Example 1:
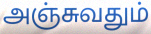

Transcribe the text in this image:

அஞ்சுவதும்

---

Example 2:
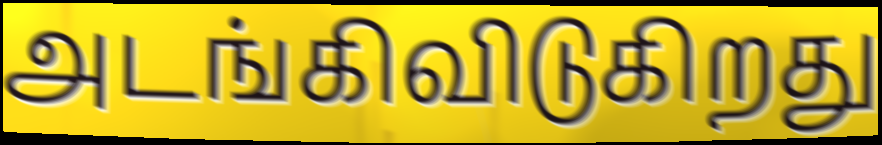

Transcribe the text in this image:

அடங்கிவிடுகிறது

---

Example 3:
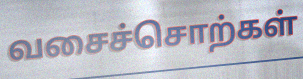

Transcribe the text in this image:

வசைச்சொற்கள்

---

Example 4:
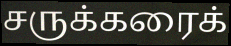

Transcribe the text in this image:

சருக்கரைக்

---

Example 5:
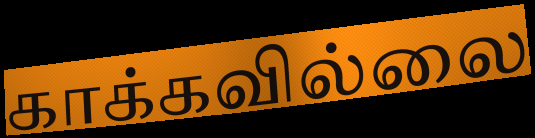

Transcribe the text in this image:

காக்கவில்லை